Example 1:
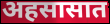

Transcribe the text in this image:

अहसासात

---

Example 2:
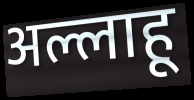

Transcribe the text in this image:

अल्लाहू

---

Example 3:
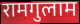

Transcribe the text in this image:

रामगुलाम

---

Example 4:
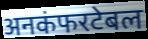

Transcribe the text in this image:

अनकंफरटेबल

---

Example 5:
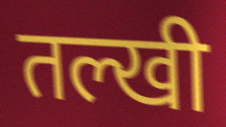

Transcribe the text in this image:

तल्‍खी